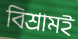
বিশ্রামই